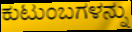
ಕುಟುಂಬಗಳನ್ನು